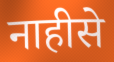
नाहीसे